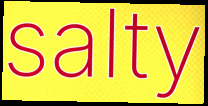
salty